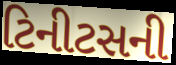
ટિનીટસની